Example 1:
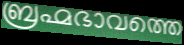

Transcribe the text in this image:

ബ്രഹ്മഭാവത്തെ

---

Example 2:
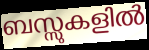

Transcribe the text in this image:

ബസ്സുകളിൽ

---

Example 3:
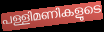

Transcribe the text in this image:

പള്ളിമണികളുടെ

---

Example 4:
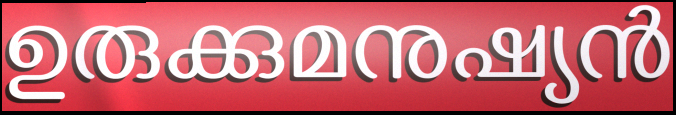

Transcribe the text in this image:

ഉരുക്കുമനുഷ്യൻ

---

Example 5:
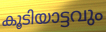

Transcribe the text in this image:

കൂടിയാട്ടവും